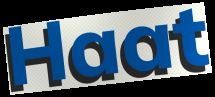
Haat